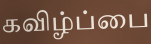
கவிழ்ப்பை